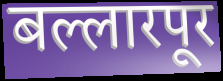
बल्लारपूर